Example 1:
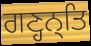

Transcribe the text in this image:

ਗਣ੍ਹਨ੍ਤਿ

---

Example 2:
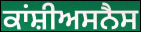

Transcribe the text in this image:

ਕਾਂਸ਼ੀਅਸਨੈਸ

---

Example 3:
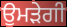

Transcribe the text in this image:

ਉਮੜੇਗੀ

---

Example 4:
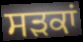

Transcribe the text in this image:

ਸੜਕਾਂ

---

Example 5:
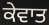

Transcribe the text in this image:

ਕੇਵਾਤ